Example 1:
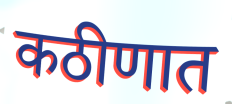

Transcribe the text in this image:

कठीणात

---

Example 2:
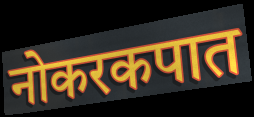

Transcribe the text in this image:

नोकरकपात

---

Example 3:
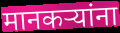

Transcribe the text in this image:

मानकऱ्यांना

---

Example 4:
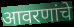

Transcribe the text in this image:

आवरणांचे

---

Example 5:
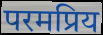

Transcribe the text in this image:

परमप्रिय